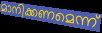
മാനിക്കണമെന്ന്